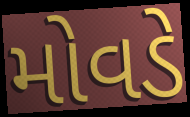
મોવડે